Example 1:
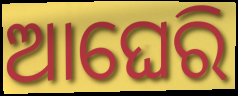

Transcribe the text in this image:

ଆଘେରି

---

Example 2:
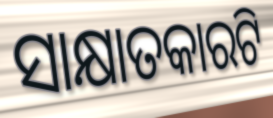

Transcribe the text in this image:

ସାକ୍ଷାତକାରଟି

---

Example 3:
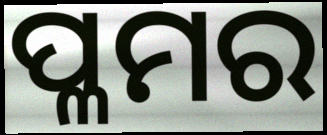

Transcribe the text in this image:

ପ୍ଳମର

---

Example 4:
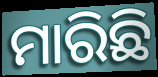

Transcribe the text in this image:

ମାରିଛି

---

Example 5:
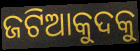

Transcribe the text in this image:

ଜଟିଆକୁଦକୁ